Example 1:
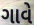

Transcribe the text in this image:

ગાવે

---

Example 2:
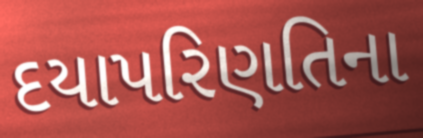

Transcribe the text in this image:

દયાપરિણતિના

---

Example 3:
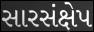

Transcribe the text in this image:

સારસંક્ષેપ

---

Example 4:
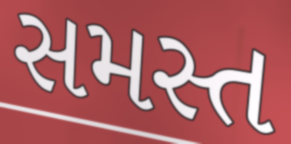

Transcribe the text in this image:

સમસ્ત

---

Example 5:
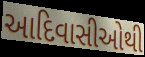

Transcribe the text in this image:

આદિવાસીઓથી